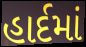
હાર્દમાં